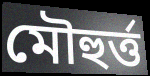
মৌহুৰ্ত্ত